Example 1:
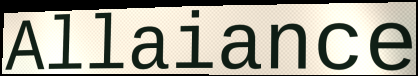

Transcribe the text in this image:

Allaiance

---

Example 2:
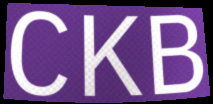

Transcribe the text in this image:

CKB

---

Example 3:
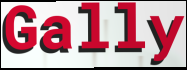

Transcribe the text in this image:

Gally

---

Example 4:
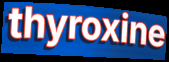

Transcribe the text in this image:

thyroxine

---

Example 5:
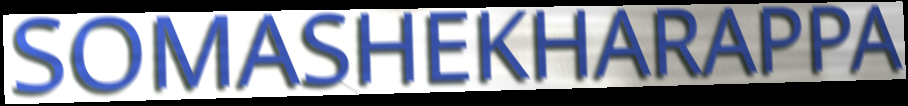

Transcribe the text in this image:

SOMASHEKHARAPPA